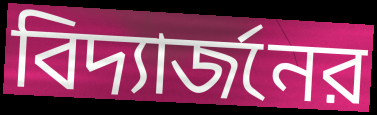
বিদ্যার্জনের